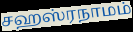
சஹஸ்ரநாமம்